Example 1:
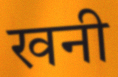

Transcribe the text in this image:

खनी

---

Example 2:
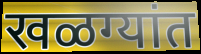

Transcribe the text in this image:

खळग्यांत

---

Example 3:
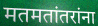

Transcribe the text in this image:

मतमतांतरांना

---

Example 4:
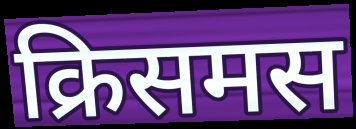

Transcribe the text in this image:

क्रिसमस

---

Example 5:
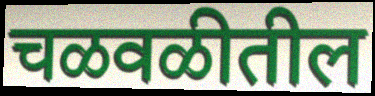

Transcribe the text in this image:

चळवळीतील